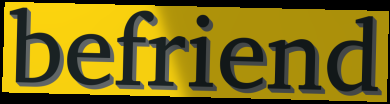
befriend